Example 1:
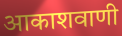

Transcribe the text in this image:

आकाशवाणी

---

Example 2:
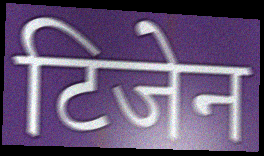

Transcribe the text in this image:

टिजेन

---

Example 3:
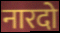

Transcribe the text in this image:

नारदो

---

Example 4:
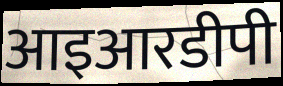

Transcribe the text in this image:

आइआरडीपी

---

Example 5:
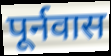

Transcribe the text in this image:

पूर्नवास